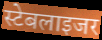
स्टेबलाइजर